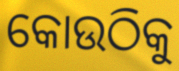
କୋଉଠିକୁ